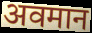
अवमान